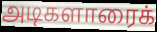
அடிகளாரைக்